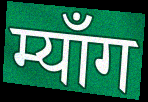
म्याँग